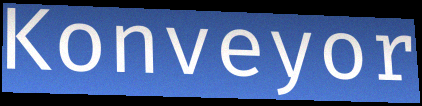
Konveyor